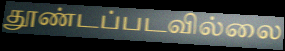
தூண்டப்படவில்லை